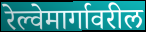
रेल्वेमार्गावरील